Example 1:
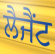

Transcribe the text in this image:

ਲੈਜੈਂਟ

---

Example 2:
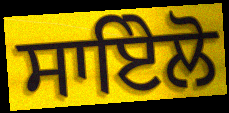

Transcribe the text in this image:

ਸਾਇੇਲੋ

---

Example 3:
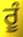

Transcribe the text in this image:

ਰੂੰ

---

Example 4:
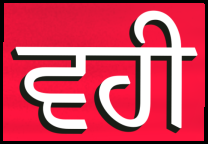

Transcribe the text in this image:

ਵਹੀ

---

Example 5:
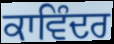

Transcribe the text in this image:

ਕਾਵਿੰਦਰ